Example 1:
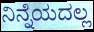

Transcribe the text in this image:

ನಿನ್ನೆಯದಲ್ಲ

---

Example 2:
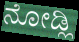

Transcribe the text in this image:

ನೋಡ್ಲಿ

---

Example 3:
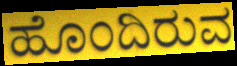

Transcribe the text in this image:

ಹೊಂದಿರುವ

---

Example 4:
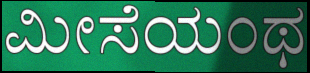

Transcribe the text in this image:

ಮೀಸೆಯಂಥ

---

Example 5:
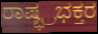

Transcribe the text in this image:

ರಾಷ್ಟ್ರಭಕ್ತರ